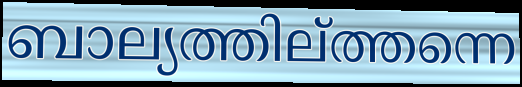
ബാല്യത്തില്ത്തന്നെ